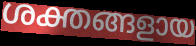
ശക്തങ്ങളായ